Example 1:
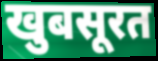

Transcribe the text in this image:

खुबसूरत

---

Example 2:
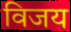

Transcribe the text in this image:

विजय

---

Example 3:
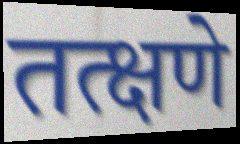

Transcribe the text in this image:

तत्क्षणे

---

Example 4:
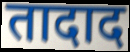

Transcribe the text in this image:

तादाद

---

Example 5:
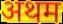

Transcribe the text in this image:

अथम